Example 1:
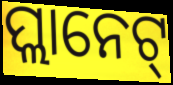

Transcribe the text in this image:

ପ୍ଲାନେଟ୍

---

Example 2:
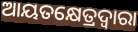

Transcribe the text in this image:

ଆୟତକ୍ଷେତ୍ରଦ୍ଵାରା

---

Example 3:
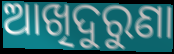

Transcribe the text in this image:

ଆଖିଦୁରୁଣା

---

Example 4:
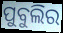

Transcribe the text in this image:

ପୁବୁଲିର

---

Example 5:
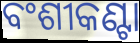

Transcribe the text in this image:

ବଂଶୀକଣ୍ଟା